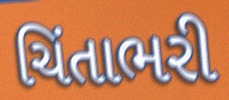
ચિંતાભરી